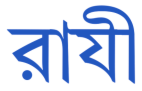
রাযী